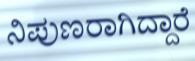
ನಿಪುಣರಾಗಿದ್ದಾರೆ